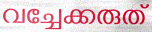
വച്ചേക്കരുത്